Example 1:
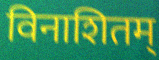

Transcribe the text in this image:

विनाशितम्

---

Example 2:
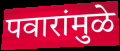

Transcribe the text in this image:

पवारांमुळे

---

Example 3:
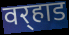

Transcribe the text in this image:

वर्‍हाड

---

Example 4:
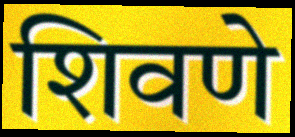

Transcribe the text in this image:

शिवणे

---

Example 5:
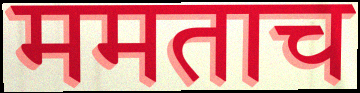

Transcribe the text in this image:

ममताच